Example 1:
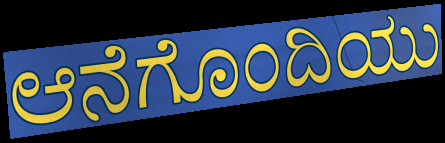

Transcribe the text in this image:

ಆನೆಗೊಂದಿಯು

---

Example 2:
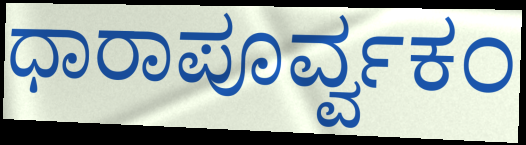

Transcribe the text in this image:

ಧಾರಾಪೂರ್ವ್ವಕಂ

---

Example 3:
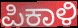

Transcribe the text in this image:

ಪಿಕಾಳಿ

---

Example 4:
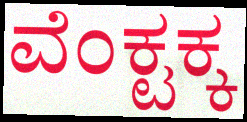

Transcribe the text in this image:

ವೆಂಕ್ಟಕ್ಕ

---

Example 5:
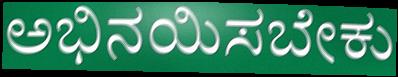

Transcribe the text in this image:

ಅಭಿನಯಿಸಬೇಕು